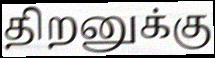
திறனுக்கு